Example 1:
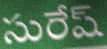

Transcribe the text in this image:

సురేష్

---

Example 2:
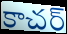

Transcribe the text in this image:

కాచర్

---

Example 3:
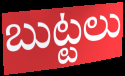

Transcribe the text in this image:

బుట్టలు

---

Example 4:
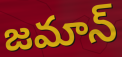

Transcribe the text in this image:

జమాన్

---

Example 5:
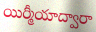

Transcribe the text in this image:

యిర్మీయాద్వారా